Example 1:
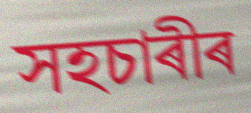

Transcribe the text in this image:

সহচাৰীৰ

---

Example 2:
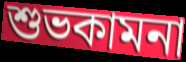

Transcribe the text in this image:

শুভকামনা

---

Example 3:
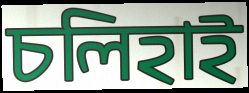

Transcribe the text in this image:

চলিহাই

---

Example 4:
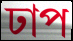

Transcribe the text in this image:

ঢাপ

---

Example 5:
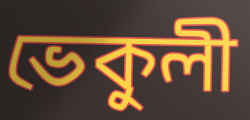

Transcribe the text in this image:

ভেকুলী